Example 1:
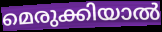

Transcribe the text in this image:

മെരുക്കിയാൽ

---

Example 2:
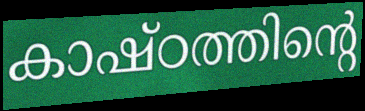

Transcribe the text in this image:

കാഷ്ഠത്തിന്റെ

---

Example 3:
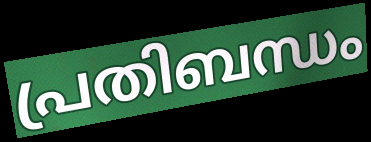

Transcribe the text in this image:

പ്രതിബന്ധം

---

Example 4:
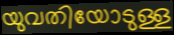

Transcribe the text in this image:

യുവതിയോടുള്ള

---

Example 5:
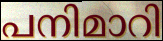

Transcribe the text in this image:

പനിമാറി